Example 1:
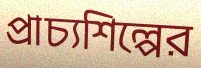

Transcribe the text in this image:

প্রাচ্যশিল্পের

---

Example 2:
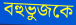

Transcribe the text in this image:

বহুভুজকে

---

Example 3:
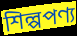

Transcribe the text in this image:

শিল্পপণ্য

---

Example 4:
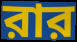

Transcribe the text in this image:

রার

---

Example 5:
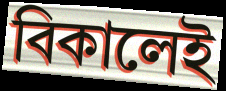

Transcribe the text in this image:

বিকালেই